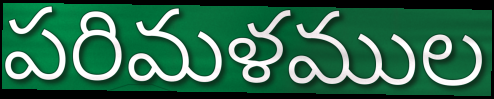
పరిమళముల